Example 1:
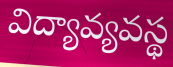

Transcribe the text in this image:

విద్యావ్యవస్థ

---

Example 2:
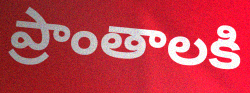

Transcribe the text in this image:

ప్రాంతాలకి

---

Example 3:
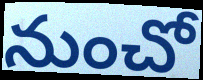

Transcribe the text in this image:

నుంచో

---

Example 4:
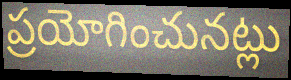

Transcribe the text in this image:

ప్రయోగించునట్లు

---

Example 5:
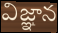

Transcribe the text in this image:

విజ్ఞాన